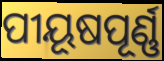
ପୀୟୂଷପୂର୍ଣ୍ଣ